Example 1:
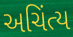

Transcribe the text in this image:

અચિંત્ય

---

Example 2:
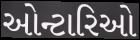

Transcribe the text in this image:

ઓન્ટારિઓ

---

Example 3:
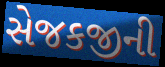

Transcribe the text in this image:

સેજકજીની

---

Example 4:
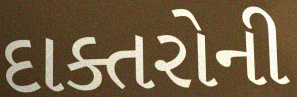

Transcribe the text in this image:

દાક્તરોની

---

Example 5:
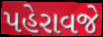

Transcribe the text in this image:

પહેરાવજે